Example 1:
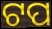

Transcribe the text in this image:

ଟପ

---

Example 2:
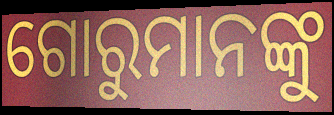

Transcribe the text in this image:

ଗୋରୁମାନଙ୍କୁ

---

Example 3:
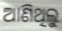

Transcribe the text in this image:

ଆଣିଥିଲୁ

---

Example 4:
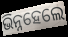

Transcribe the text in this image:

ଭିନ୍ନହେଲେ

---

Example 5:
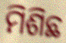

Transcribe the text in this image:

ମିଶିଛ